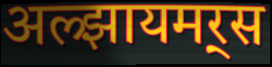
अल्झायमर्स